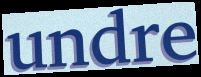
undre